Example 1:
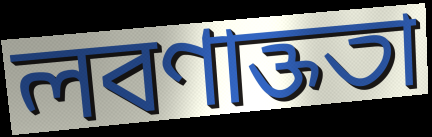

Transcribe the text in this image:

লবণাক্ততা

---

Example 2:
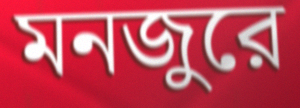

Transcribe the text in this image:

মনজুরে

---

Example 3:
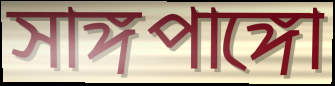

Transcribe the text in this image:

সাঙ্গপাঙ্গো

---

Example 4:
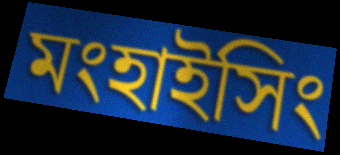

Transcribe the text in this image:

মংহাইসিং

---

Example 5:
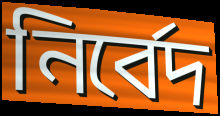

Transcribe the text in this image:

নির্বেদ